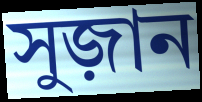
সুজ়ান